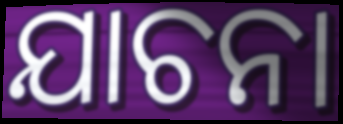
ଯାଚନା